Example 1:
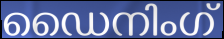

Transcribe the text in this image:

ഡൈനിംഗ്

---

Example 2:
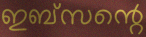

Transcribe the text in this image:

ഇബ്സന്റെ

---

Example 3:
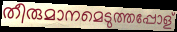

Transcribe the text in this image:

തീരുമാനമെടുത്തപ്പോള്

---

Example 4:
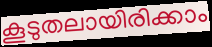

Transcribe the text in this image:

കൂടുതലായിരിക്കാം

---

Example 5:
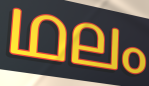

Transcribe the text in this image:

ഥലം